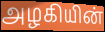
அழகியின்